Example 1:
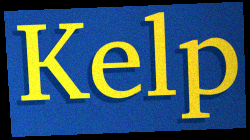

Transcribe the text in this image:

Kelp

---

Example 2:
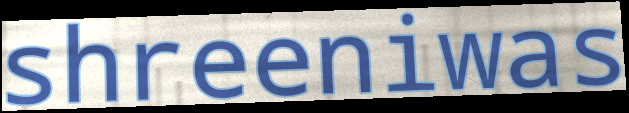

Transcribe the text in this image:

shreeniwas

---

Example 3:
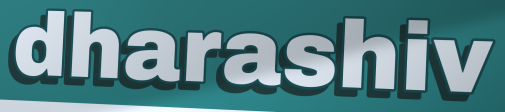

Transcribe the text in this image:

dharashiv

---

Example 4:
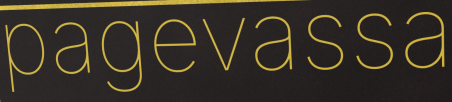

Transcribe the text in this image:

pagevassa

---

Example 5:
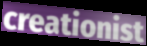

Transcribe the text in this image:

creationist